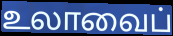
உலாவைப்